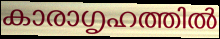
കാരാഗൃഹത്തിൽ